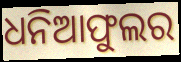
ଧନିଆଫୁଲର